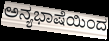
ಅನ್ಯಭಾಷೆಯಿಂದ